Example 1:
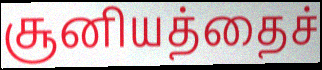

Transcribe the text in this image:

சூனியத்தைச்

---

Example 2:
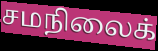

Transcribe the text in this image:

சமநிலைக்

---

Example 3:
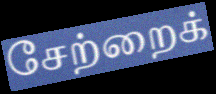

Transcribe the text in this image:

சேற்றைக்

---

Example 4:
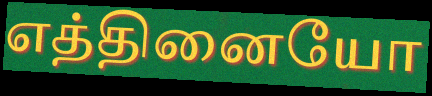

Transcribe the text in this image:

எத்தினையோ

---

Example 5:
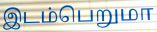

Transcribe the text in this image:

இடம்பெறுமா